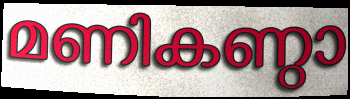
മണികണ്ഠാ